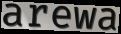
arewa